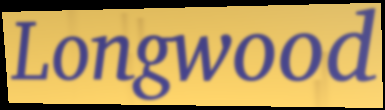
Longwood